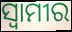
ସ୍ଵାମୀର